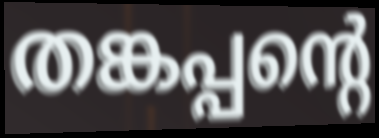
തങ്കപ്പന്റെ